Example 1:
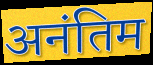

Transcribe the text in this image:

अनंतिम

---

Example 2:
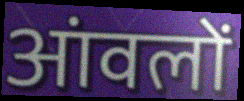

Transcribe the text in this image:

आंवलों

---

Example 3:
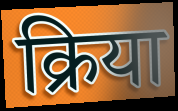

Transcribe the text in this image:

क्रिया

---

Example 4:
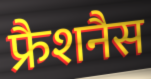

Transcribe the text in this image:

फ्रैशनैस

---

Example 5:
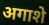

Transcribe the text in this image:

अगाशे